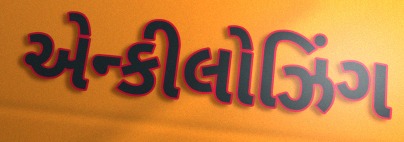
એન્કીલોઝિંગ